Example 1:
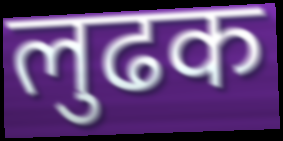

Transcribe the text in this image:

लुढक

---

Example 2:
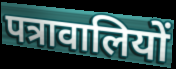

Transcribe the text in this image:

पत्रावालियों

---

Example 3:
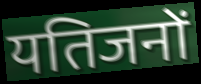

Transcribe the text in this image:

यतिजनों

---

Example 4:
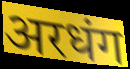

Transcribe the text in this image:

अरधंग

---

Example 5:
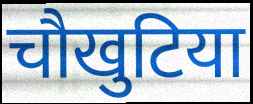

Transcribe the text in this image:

चौखुटिया